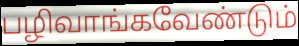
பழிவாங்கவேண்டும்